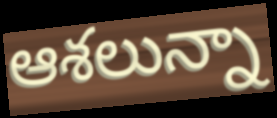
ఆశలున్నా